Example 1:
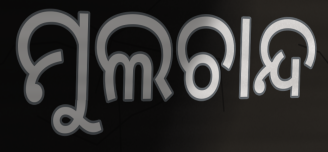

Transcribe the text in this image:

ମୁଲଚାନ୍ଦ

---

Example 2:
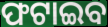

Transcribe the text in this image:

ଫଟାଇବ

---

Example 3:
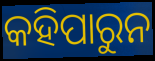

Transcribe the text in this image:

କହିପାରୁନ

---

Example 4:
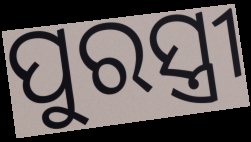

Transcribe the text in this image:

ପୁରସ୍ତ୍ରୀ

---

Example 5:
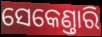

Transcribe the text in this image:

ସେକେଣ୍ତାରି